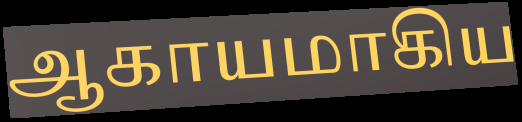
ஆகாயமாகிய